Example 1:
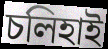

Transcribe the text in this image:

চলিহাই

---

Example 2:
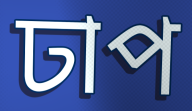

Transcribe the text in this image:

ঢাপ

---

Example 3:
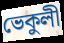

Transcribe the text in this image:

ভেকুলী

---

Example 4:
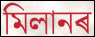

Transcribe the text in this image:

মিলানৰ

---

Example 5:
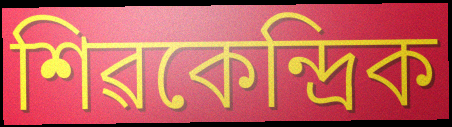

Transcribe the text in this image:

শিৱকেন্দ্ৰিক